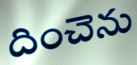
దించెను